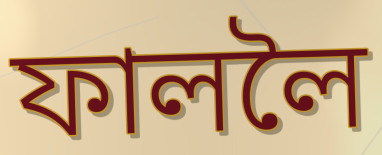
ফাললৈ